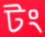
টং